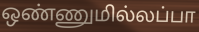
ஒண்ணுமில்லப்பா